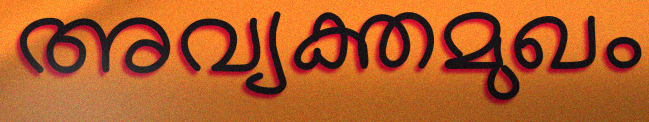
അവ്യക്തമുഖം